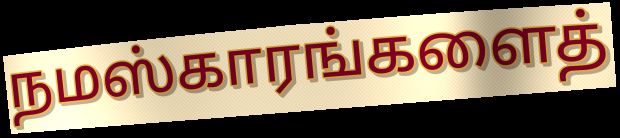
நமஸ்காரங்களைத்